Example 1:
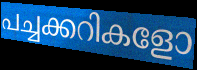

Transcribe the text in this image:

പച്ചക്കറികളോ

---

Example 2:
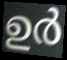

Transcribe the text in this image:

ഉർ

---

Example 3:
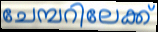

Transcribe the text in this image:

ചേമ്പറിലേക്ക്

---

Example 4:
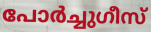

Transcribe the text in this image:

പോർച്ചുഗീസ്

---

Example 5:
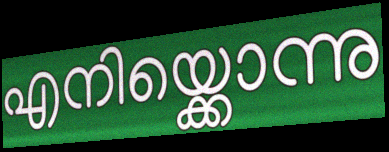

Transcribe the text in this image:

എനിയ്ക്കൊന്നു